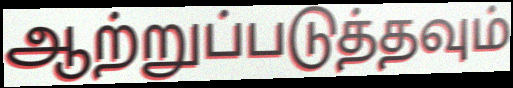
ஆற்றுப்படுத்தவும்